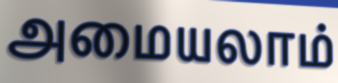
அமையலாம்